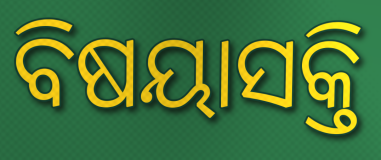
ବିଷୟାସକ୍ତି